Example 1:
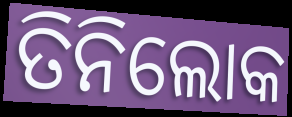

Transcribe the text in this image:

ତିନିଲୋକ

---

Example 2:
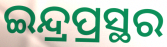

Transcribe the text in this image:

ଇନ୍ଦ୍ରପ୍ରସ୍ଥର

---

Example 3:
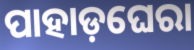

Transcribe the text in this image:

ପାହାଡ଼ଘେରା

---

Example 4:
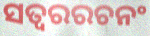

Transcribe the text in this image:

ସତ୍ୱରରଚନଂ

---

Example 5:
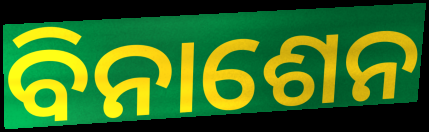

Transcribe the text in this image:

ବିନାଶେନ